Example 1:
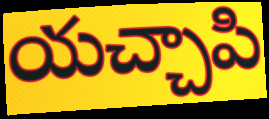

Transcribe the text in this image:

యచ్చాపి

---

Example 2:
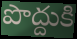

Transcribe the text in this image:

పొద్దుకి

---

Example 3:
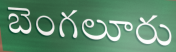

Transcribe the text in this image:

బెంగలూరు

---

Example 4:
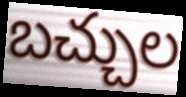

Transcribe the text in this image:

బచ్చుల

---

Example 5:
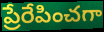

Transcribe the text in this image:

ప్రేరేపించగా